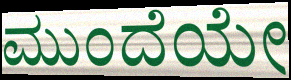
ಮುಂದೆಯೇ